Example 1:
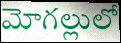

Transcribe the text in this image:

మోగల్లులో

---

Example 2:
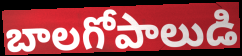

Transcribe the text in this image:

బాలగోపాలుడి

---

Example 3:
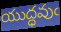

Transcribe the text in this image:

యుద్ధవుఁ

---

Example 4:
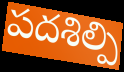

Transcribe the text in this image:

పదశిల్పి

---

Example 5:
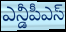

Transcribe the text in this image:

ఎన్డీపీఎస్